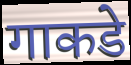
गाकडे